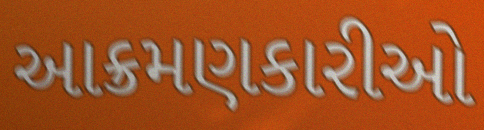
આક્રમણકારીઓ